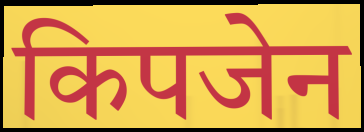
किपजेन